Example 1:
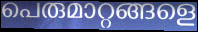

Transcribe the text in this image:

പെരുമാറ്റങ്ങളെ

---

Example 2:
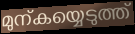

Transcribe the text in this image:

മുന്കയ്യെടുത്ത്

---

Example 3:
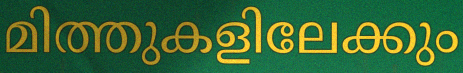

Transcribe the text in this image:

മിത്തുകളിലേക്കും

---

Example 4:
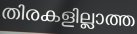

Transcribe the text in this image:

തിരകളില്ലാത്ത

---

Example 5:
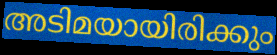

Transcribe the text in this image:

അടിമയായിരിക്കും